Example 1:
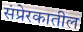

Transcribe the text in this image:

संप्रेरकातील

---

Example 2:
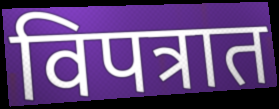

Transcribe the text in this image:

विपत्रात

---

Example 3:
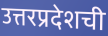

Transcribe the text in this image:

उत्तरप्रदेशची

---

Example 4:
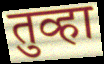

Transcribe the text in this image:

तुव्हा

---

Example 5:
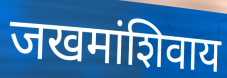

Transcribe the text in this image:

जखमांशिवाय